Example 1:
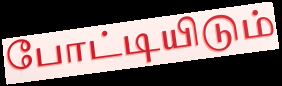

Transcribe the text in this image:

போட்டியிடும்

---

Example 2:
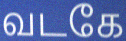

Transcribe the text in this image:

வடகே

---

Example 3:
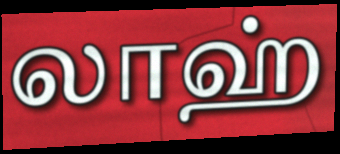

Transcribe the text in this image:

லாஹ்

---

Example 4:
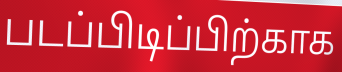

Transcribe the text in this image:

படப்பிடிப்பிற்காக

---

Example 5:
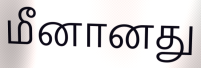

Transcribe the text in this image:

மீனானது